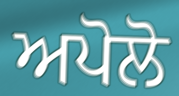
ਅਪੋਲੋ